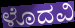
ಳೊದವಿ